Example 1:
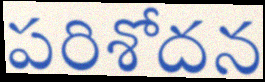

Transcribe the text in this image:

పరిశోదన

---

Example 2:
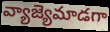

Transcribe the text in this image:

వ్యాజ్యెమాడగా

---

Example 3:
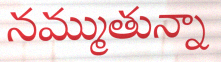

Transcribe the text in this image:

నమ్ముతున్నా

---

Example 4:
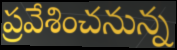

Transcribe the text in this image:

ప్రవేశించనున్న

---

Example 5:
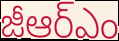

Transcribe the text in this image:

జీఆర్ఎం